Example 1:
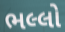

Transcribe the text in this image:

ભલ્લો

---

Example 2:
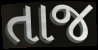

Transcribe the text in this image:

તાજ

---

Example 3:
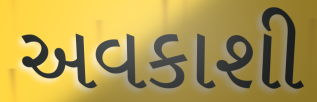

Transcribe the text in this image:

અવકાશી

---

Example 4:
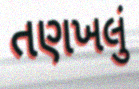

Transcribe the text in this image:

તણખલું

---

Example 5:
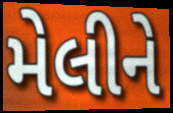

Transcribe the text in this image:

મેલીને